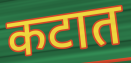
कटात